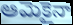
ఆమెకైనా